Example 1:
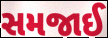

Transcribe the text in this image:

સમજાઈ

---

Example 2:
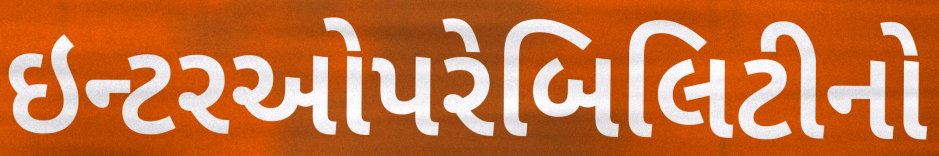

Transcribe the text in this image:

ઇન્ટરઓપરેબિલિટીનો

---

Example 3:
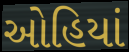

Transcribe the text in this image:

ઓહિયાં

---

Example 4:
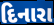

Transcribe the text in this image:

દિનારા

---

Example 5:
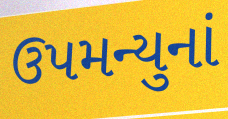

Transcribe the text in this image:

ઉપમન્યુનાં